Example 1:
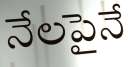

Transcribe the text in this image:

నేలపైనే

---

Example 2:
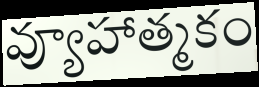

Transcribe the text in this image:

వ్యూహాత్మకం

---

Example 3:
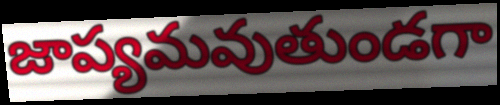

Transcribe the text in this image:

జాప్యమవుతుండగా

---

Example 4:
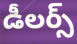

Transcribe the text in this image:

డీలర్స్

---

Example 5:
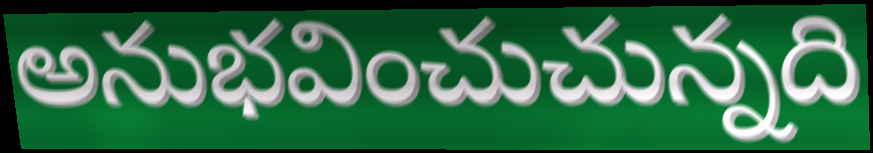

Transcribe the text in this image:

అనుభవించుచున్నది